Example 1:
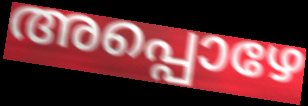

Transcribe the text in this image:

അപ്പൊഴേ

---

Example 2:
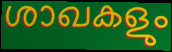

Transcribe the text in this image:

ശാഖകളും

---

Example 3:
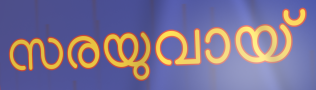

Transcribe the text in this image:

സരയുവായ്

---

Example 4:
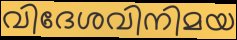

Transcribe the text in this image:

വിദേശവിനിമയ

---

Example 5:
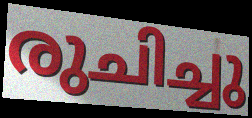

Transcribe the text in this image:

രുചിച്ചു